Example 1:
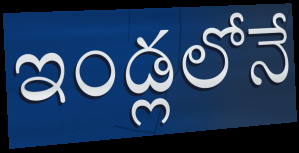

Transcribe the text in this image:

ఇండ్లలోనే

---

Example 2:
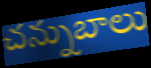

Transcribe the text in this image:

చన్నుబాలు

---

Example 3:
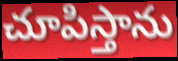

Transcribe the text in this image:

చూపిస్తాను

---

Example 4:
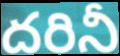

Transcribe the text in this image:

దరినీ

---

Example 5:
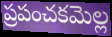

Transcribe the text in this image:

ప్రపంచకమెల్ల